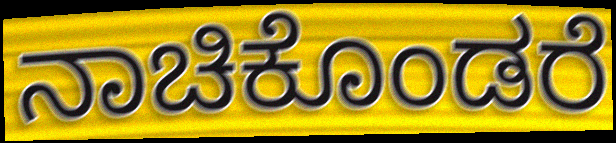
ನಾಚಿಕೊಂಡರೆ